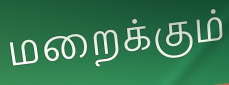
மறைக்கும்